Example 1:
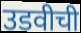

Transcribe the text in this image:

उडवीची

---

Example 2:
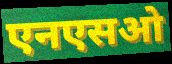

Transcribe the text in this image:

एनएसओ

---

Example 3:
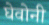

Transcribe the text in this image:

घेवोनी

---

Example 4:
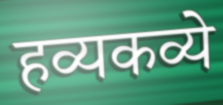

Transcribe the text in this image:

हव्यकव्ये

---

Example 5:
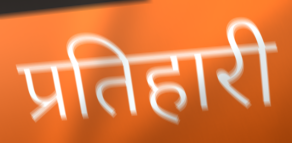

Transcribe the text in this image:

प्रतिहारी